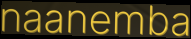
naanemba